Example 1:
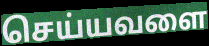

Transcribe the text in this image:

செய்யவளை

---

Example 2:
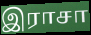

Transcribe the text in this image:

இராசா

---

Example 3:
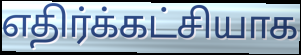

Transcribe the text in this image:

எதிர்க்கட்சியாக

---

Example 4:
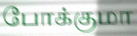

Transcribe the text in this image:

போக்குமா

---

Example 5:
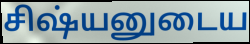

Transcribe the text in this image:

சிஷ்யனுடைய